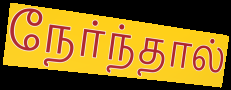
நேர்ந்தால்